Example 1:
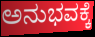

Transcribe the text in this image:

ಅನುಭವಕ್ಕೆ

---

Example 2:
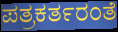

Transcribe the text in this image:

ಪತ್ರಕರ್ತರಂತೆ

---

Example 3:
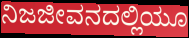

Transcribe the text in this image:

ನಿಜಜೀವನದಲ್ಲಿಯೂ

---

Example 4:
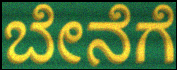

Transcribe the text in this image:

ಬೇನೆಗೆ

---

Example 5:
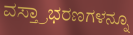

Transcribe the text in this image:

ವಸ್ತ್ರಾಭರಣಗಳನ್ನೂ